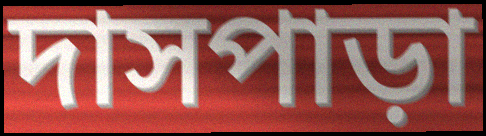
দাসপাড়া